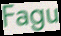
Fagu